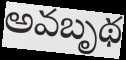
అవబృథ